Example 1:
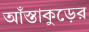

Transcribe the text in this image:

আঁস্তাকুড়ের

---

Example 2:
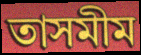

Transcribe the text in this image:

তাসমীম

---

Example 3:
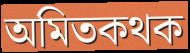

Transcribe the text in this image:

অমিতকথক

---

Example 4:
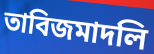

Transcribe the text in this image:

তাবিজমাদলি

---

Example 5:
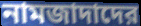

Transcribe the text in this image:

নামজাদাদের